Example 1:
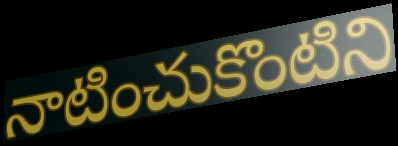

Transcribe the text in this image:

నాటించుకొంటిని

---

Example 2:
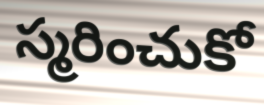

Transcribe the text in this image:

స్మరించుకో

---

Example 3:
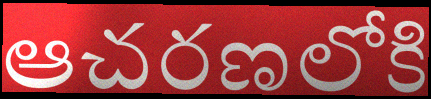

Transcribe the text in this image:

ఆచరణలోకి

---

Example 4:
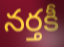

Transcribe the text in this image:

నర్తకీ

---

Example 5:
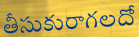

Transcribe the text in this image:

తీసుకురాగలదో